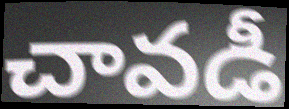
చావడీ